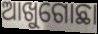
ଆଖୁଗୋଛା